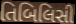
તિબિલિસી